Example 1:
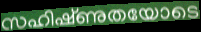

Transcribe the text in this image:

സഹിഷ്‌ണുതയോടെ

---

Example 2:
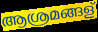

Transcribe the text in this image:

ആശ്രമങ്ങള്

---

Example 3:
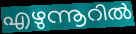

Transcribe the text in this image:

എഴുന്നൂറിൽ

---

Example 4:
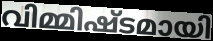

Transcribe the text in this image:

വിമ്മിഷ്ടമായി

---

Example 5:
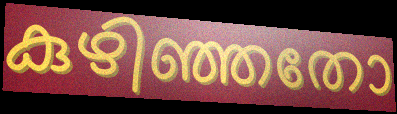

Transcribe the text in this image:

കുഴിഞ്ഞതോ